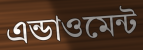
এন্ডাওমেন্ট